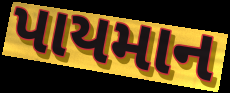
પાયમાન